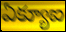
ఏక్యూఐ